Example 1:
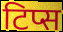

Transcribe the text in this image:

टिप्स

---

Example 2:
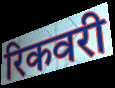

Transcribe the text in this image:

रिकवरी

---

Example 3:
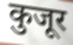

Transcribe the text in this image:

कुजूर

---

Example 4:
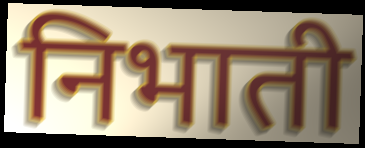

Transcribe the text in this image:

निभाती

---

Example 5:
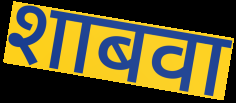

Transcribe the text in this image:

शाबवा